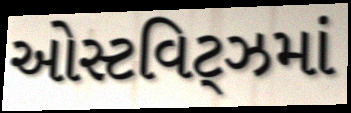
ઓસ્ટવિટ્ઝમાં